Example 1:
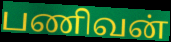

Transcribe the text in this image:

பணிவன்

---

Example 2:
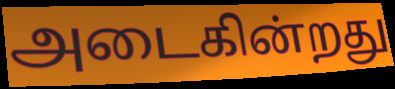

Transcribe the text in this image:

அடைகின்றது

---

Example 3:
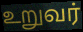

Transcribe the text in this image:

உறுவர்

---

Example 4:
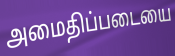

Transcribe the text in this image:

அமைதிப்படையை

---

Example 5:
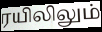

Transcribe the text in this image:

ரயிலிலும்